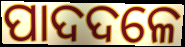
ପାଦଦଳେ